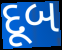
દૂબ